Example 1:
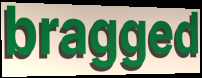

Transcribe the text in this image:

bragged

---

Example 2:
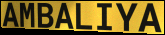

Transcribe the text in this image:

AMBALIYA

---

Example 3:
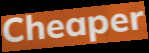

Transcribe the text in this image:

Cheaper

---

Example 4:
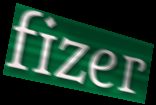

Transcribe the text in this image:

fizer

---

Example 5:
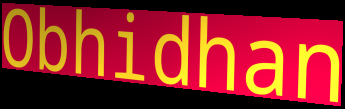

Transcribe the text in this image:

Obhidhan